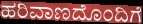
ಹರಿವಾಣದೊಂದಿಗೆ